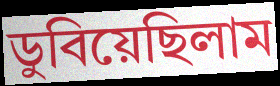
ডুবিয়েছিলাম